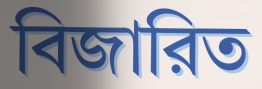
বিজারিত